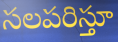
సలపరిస్తూ